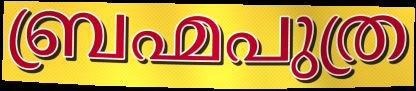
ബ്രഹ്മപുത്ര